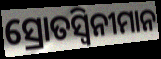
ସ୍ରୋତସ୍ୱିନୀମାନ